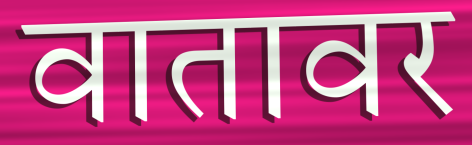
वातावर